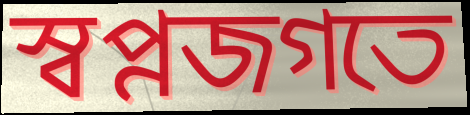
স্বপ্নজগতে